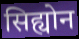
सिह्योन